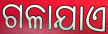
ଗଳାଯାଏ